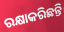
ରକ୍ଷାକରିଛନ୍ତି